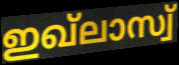
ഇഖ്ലാസ്വ്